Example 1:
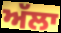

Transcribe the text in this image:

ਅੱਲਾ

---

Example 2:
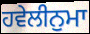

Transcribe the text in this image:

ਹਵੇਲੀਨੁਮਾ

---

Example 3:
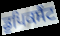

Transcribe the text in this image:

ਡੁਪਿਕਸੈਂਟ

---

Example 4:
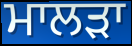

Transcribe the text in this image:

ਮਾਲੜਾ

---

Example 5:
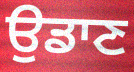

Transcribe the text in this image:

ਉਡਾਣ